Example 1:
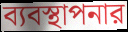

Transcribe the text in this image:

ব্যবস্থাপনার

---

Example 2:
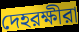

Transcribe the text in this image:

দেহরক্ষীরা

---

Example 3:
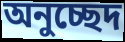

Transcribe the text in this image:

অনুচ্ছেদ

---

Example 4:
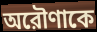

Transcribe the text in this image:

অরৌণাকে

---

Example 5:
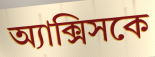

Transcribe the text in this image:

অ্যাক্সিসকে